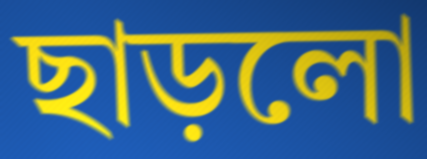
ছাড়লো